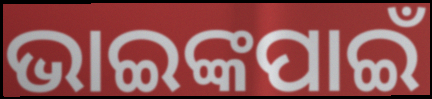
ଭାଇଙ୍କପାଇଁ